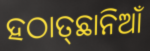
ହଠାତ୍‌ଛାନିଆଁ